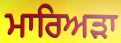
ਮਾਰਿਅੜਾ